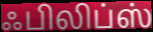
ஃபிலிப்ஸ்